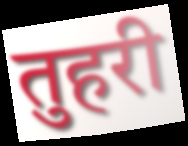
तुहरी